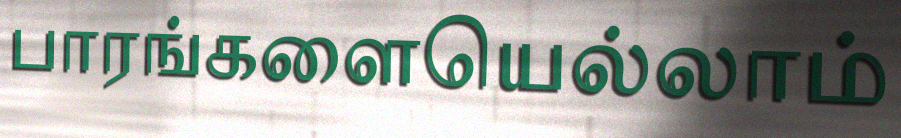
பாரங்களையெல்லாம்